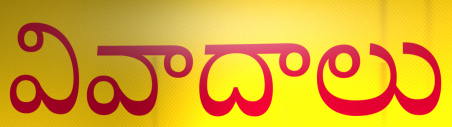
వివాదాలు